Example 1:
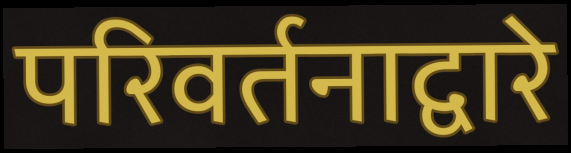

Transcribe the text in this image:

परिवर्तनाद्वारे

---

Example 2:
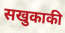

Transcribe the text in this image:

सखुकाकी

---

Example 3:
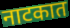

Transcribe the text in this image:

नाटकात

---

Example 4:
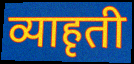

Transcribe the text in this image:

व्याहृती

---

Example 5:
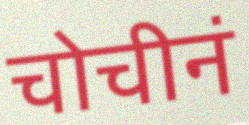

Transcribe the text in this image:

चोचीनं